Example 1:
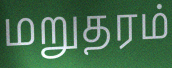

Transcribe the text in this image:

மறுதரம்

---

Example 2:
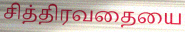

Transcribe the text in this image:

சித்திரவதையை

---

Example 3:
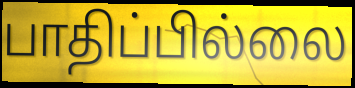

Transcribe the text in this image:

பாதிப்பில்லை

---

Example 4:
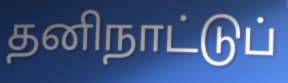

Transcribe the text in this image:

தனிநாட்டுப்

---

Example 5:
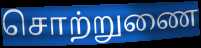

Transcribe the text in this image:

சொற்றுணை